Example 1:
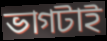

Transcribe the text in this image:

ভাগটাই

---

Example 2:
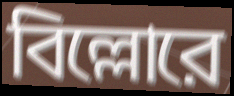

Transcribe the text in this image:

বিল্লোরে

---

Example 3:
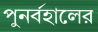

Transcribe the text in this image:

পুনর্বহালের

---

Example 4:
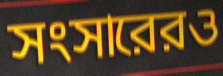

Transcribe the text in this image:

সংসারেরও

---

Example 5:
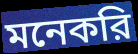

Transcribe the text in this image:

মনেকরি